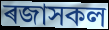
ৰজাসকল